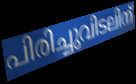
പിരിച്ചുവിടലിന്